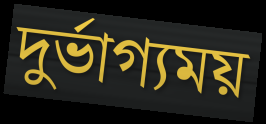
দুর্ভাগ্যময়